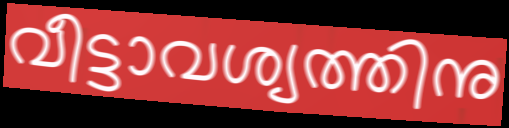
വീട്ടാവശ്യത്തിനു